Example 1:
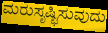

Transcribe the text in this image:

ಮರುಸೃಷ್ಟಿಸುವುದು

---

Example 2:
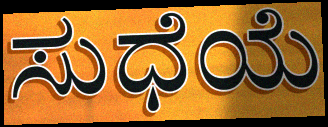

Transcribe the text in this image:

ಸುಧೆಯೆ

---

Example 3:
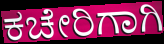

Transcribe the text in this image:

ಕಚೇರಿಗಾಗಿ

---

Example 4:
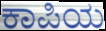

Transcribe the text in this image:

ಕಾಪಿಯ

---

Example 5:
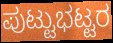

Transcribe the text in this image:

ಪುಟ್ಟುಭಟ್ಟರ